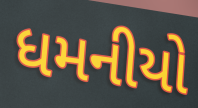
ધમનીયો